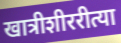
खात्रीशीररीत्या